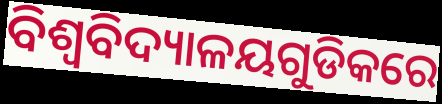
ବିଶ୍ୱବିଦ୍ୟାଳୟଗୁଡିକରେ